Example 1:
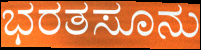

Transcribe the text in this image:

ಭರತಸೂನು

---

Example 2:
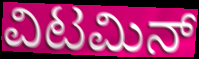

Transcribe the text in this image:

ವಿಟಮಿನ್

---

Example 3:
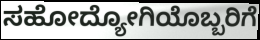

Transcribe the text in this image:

ಸಹೋದ್ಯೋಗಿಯೊಬ್ಬರಿಗೆ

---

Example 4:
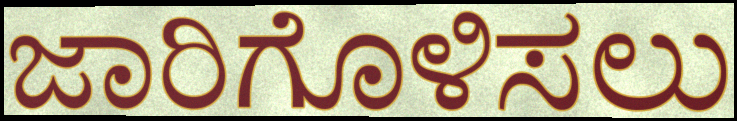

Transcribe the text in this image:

ಜಾರಿಗೊಳಿಸಲು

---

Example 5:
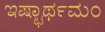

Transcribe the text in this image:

ಇಷ್ಟಾರ್ಥಮಂ